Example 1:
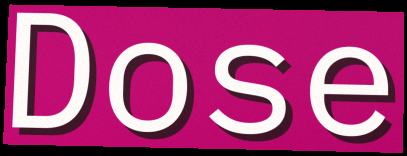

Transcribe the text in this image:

Dose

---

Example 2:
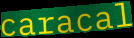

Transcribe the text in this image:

caracal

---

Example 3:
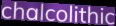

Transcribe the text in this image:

chalcolithic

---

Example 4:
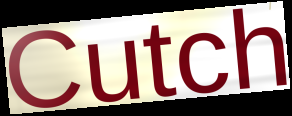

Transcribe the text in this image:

Cutch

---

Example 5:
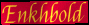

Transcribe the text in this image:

Enkhbold